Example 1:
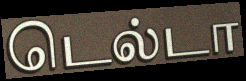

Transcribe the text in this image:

டெல்டா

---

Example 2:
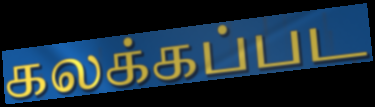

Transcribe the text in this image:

கலக்கப்பட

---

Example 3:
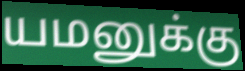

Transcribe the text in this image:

யமனுக்கு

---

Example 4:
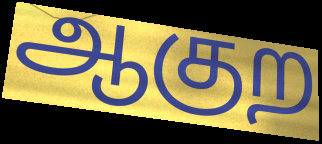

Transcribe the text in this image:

ஆகுற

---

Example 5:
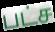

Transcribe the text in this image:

பட்ச